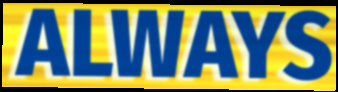
ALWAYS